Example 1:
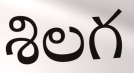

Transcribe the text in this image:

శిలగ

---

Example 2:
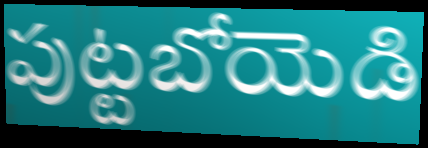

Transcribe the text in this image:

పుట్టబోయెడి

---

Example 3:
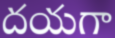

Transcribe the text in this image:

దయగా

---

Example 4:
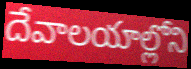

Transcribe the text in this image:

దేవాలయాల్లోని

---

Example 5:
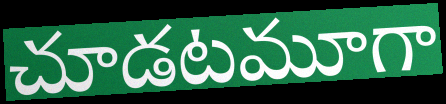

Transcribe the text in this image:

చూడటమూగా